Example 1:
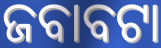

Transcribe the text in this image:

ଜବାବଟା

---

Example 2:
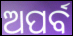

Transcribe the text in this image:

ଅପର୍ବ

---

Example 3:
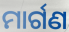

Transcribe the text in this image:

ମାର୍ଗଣ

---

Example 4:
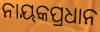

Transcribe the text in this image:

ନାୟକପ୍ରଧାନ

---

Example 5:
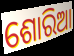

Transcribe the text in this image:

ଶୋରିଆ